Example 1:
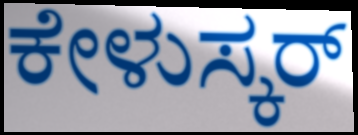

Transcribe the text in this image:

ಕೇಳುಸ್ಕರ್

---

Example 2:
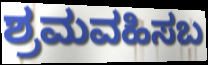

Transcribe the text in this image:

ಶ್ರಮವಹಿಸಬ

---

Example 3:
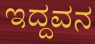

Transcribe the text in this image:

ಇದ್ದವನ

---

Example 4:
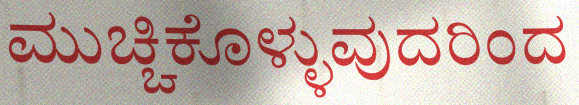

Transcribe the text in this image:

ಮುಚ್ಚಿಕೊಳ್ಳುವುದರಿಂದ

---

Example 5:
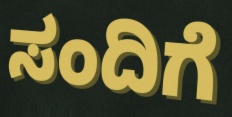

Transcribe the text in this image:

ಸಂದಿಗೆ